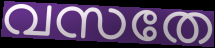
വസതേ